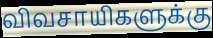
விவசாயிகளுக்கு